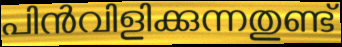
പിൻവിളിക്കുന്നതുണ്ട്